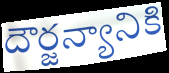
దౌర్జన్యానికి